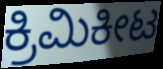
ಕ್ರಿಮಿಕೀಟ